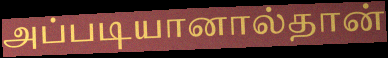
அப்படியானால்தான்